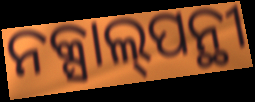
ନକ୍ସାଲ୍‌ପନ୍ଥୀ